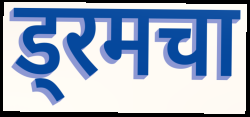
ड्रमचा